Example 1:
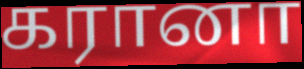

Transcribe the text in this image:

கரானா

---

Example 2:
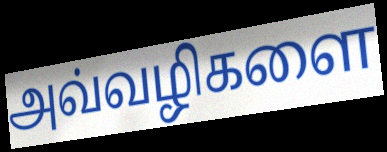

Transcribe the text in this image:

அவ்வழிகளை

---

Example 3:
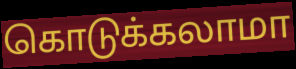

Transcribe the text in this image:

கொடுக்கலாமா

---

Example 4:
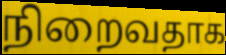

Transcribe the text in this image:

நிறைவதாக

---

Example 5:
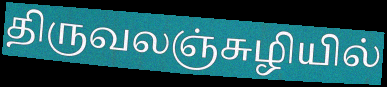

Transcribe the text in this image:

திருவலஞ்சுழியில்